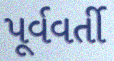
પૂર્વવર્તી